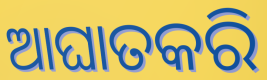
ଆଘାତକରି